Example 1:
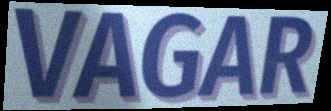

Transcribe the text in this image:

VAGAR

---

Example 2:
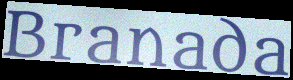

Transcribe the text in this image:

Branada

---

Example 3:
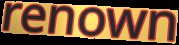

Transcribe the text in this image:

renown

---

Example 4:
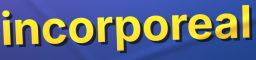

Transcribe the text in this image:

incorporeal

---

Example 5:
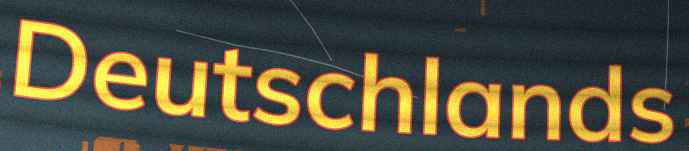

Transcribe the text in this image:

Deutschlands